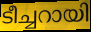
ടീച്ചറായി